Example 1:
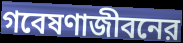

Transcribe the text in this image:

গবেষণাজীবনের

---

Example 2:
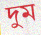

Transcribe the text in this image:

দুম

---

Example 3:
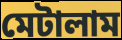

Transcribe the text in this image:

মেটালাম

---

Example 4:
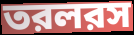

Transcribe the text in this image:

তরলরস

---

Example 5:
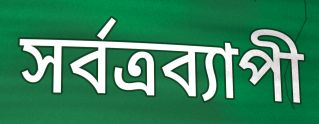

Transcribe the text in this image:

সর্বত্রব্যাপী